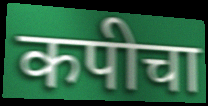
कपीचा